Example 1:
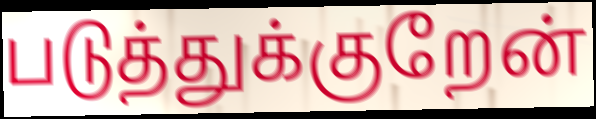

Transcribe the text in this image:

படுத்துக்குறேன்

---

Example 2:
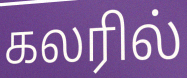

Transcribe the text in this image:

கலரில்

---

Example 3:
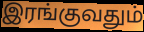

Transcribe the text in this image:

இரங்குவதும்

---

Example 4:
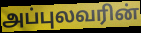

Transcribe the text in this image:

அப்புலவரின்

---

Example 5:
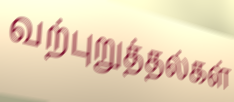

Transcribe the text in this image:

வற்புறுத்தல்கள்